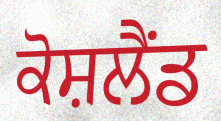
ਕੋਸ਼ਲੈਂਡ